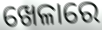
ଖେଳାରେ